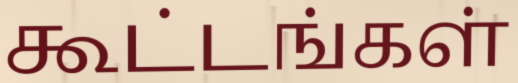
கூட்டங்கள்